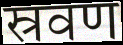
स्रवण